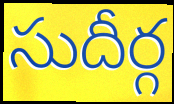
సుదీర్గ